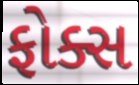
ફોક્સ